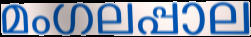
മംഗലപ്പാല